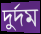
দুর্দম